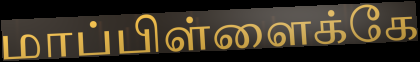
மாப்பிள்ளைக்கே